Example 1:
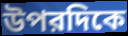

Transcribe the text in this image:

উপরদিকে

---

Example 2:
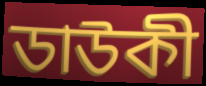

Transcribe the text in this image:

ডাউকী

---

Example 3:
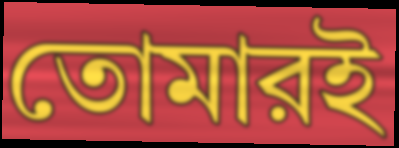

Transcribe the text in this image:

তোমারই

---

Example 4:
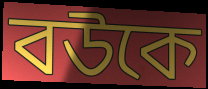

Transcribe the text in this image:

বউকে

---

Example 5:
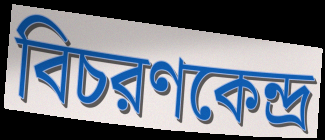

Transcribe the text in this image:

বিচরণকেন্দ্র